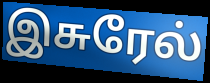
இசுரேல்